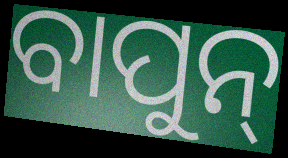
ବାପୁନ୍